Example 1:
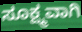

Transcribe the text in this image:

ಸೂಕ್ಷ್ಮವಾಗಿ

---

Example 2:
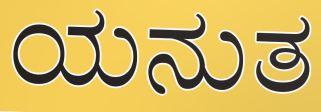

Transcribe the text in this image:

ಯನುತ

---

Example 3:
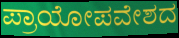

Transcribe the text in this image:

ಪ್ರಾಯೋಪವೇಶದ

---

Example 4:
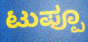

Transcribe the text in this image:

ಟುಪ್ಪೂ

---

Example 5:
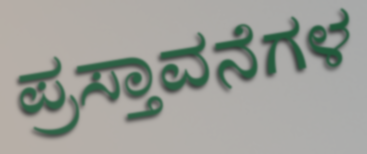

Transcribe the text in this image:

ಪ್ರಸ್ತಾವನೆಗಳ